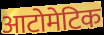
आटोमेटिक